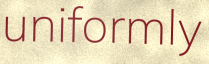
uniformly